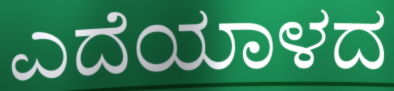
ಎದೆಯಾಳದ